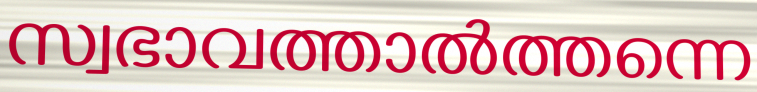
സ്വഭാവത്താൽത്തന്നെ